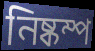
নিষ্কম্প